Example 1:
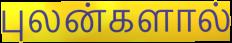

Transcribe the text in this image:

புலன்களால்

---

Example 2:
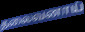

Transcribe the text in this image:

தலைவனாய்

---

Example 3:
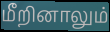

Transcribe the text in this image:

மீறினாலும்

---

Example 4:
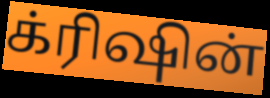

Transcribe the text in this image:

க்ரிஷின்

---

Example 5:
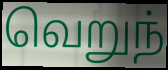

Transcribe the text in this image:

வெறுந்